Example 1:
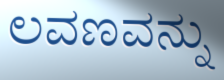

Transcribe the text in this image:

ಲವಣವನ್ನು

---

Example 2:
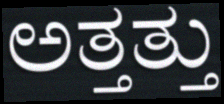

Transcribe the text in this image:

ಅತ್ತತ್ತು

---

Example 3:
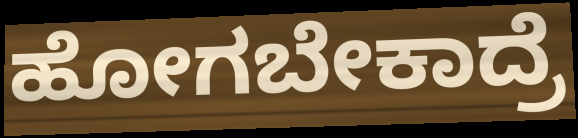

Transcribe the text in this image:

ಹೋಗಬೇಕಾದ್ರೆ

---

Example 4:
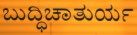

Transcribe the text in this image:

ಬುದ್ಧಿಚಾತುರ್ಯ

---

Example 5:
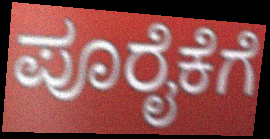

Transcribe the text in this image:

ಪೂರೈಕೆಗೆ